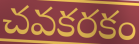
చవకరకం